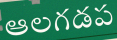
ఆలగడప